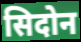
सिदोन